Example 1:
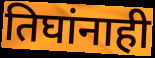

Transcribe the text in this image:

तिघांनाही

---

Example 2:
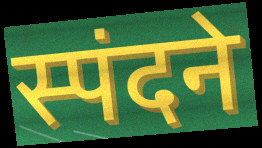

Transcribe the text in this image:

स्पंदने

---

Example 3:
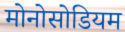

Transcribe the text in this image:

मोनोसोडियम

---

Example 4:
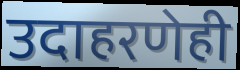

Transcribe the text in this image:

उदाहरणेही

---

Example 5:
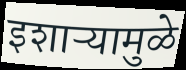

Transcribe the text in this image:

इशाऱ्यामुळे